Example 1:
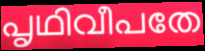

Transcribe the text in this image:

പൃഥിവീപതേ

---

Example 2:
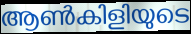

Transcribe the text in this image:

ആൺകിളിയുടെ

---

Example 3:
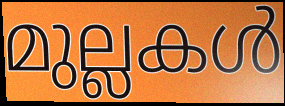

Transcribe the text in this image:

മുല്ലകൾ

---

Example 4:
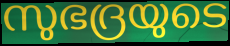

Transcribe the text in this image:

സുഭദ്രയുടെ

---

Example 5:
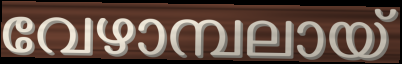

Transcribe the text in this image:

വേഴാമ്പലായ്